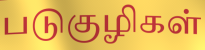
படுகுழிகள்